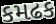
કમઢક